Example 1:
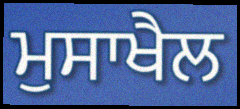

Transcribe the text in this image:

ਮੁਸਾਖੈਲ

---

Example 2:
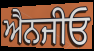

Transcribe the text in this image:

ਐਨਜੀਓ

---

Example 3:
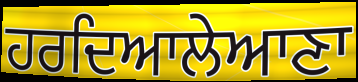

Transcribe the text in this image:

ਹਰਦਿਆਲੇਆਣਾ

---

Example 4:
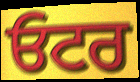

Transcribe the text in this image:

ਓਟਰ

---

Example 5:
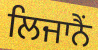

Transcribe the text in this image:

ਲਿਜਾਨੈਂ